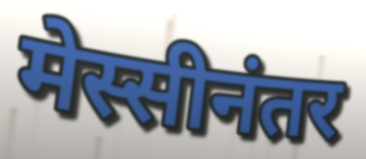
मेस्सीनंतर